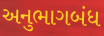
અનુભાગબંધ